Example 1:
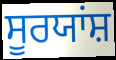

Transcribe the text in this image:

ਸੂਰਯਾਂਸ਼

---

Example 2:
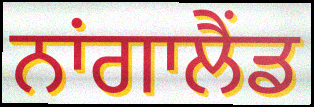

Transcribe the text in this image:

ਨਾਂਗਾਲੈਂਡ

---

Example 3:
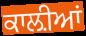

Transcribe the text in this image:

ਕਾਲ਼ੀਆਂ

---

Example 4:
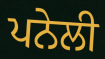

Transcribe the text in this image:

ਪਨੇਲੀ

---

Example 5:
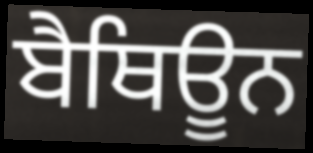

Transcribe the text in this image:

ਬੈਥਿਊਨ